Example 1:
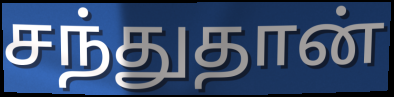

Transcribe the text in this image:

சந்துதான்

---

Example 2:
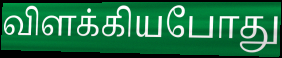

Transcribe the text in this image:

விளக்கியபோது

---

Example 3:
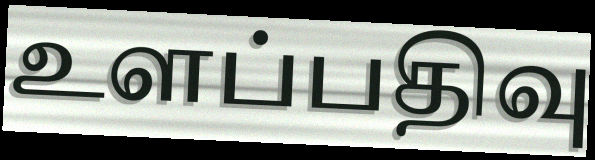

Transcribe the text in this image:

உளப்பதிவு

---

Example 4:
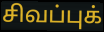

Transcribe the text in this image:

சிவப்புக்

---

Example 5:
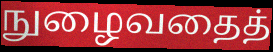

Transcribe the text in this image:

நுழைவதைத்